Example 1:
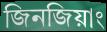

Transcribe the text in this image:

জিনজিয়াং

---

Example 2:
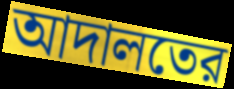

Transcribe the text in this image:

আদালতের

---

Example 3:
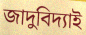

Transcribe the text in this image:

জাদুবিদ্যাই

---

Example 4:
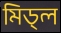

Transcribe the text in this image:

মিড্‌ল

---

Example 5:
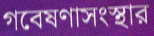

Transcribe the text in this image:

গবেষণাসংস্থার